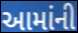
આમાંની